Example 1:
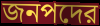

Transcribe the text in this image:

জনপদের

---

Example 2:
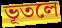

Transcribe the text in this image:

ভূতলে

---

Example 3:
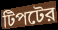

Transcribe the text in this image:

টিপটের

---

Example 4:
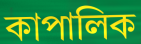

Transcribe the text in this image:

কাপালিক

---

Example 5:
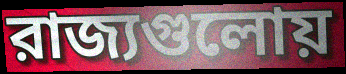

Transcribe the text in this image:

রাজ্যগুলোয়